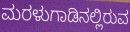
ಮರಳುಗಾಡಿನಲ್ಲಿರುವ